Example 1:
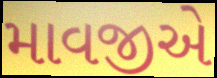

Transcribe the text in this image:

માવજીએ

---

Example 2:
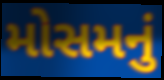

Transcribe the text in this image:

મોસમનું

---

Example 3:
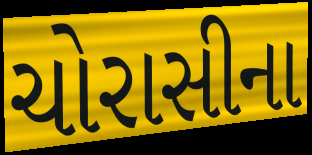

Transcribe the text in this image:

ચોરાસીના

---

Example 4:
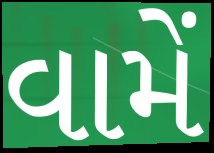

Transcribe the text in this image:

વામેં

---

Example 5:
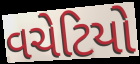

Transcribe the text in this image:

વચેટિયો